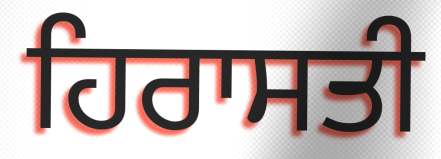
ਹਿਰਾਸਤੀ